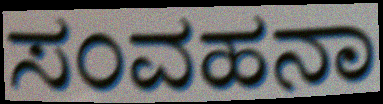
ಸಂವಹನಾ